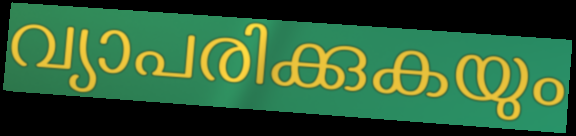
വ്യാപരിക്കുകയും